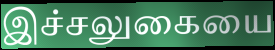
இச்சலுகையை